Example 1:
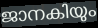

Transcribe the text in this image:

ജാനകിയും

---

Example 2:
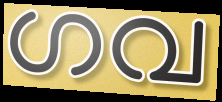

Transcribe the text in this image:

ഗവ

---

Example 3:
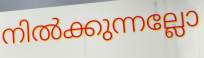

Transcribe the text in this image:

നിൽക്കുന്നല്ലോ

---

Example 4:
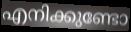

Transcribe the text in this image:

എനിക്കുണ്ടോ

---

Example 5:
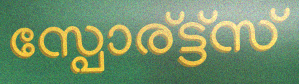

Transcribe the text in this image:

സ്പോര്ട്ട്സ്